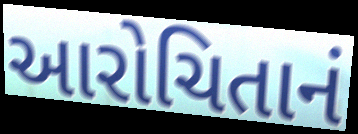
આરોચિતાનં